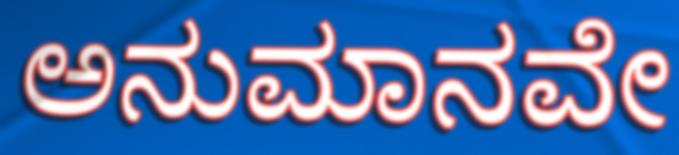
ಅನುಮಾನವೇ